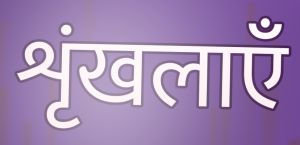
शृंखलाएँ